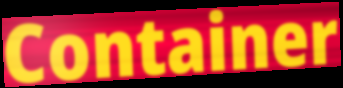
Container